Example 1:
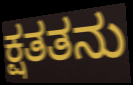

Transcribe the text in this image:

ಕ್ಷತತನು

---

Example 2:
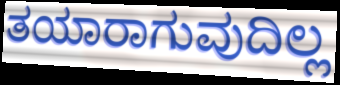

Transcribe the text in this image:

ತಯಾರಾಗುವುದಿಲ್ಲ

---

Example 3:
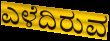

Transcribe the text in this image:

ಎಳೆದಿರುವ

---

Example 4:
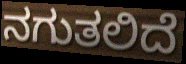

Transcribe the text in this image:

ನಗುತಲಿದೆ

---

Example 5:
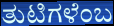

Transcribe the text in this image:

ತುಟಿಗಳೆಂಬ